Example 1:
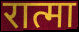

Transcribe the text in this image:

रात्मा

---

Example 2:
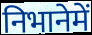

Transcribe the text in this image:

निभानेमें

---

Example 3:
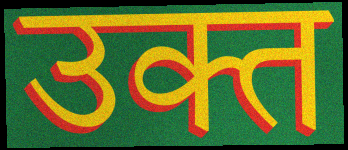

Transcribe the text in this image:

उक्‍त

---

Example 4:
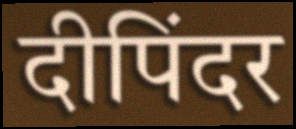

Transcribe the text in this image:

दीपिंदर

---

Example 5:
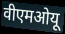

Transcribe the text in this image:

वीएमओयू